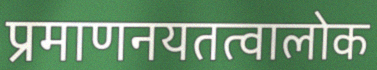
प्रमाणनयतत्वालोक